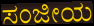
ಸಂಜೀಯ